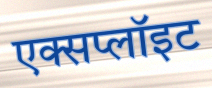
एक्सप्लॉइट